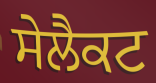
ਸੇਲੈਕਟ